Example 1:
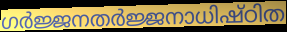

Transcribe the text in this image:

ഗർജ്ജനതർജ്ജനാധിഷ്ഠിത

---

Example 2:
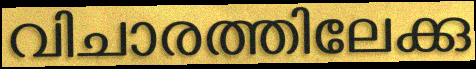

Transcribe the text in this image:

വിചാരത്തിലേക്കു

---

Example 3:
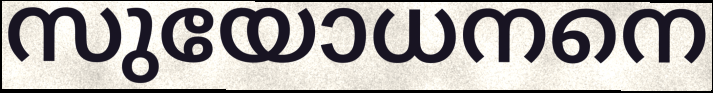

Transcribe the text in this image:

സുയോധനനെ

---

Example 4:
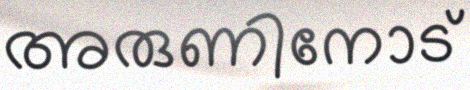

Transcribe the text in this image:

അരുണിനോട്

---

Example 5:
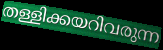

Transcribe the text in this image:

തള്ളിക്കയറിവരുന്ന